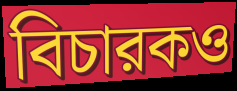
বিচারকও